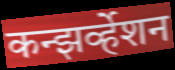
कन्झर्व्हेशन